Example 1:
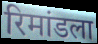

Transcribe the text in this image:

रिमांडला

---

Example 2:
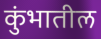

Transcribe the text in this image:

कुंभातील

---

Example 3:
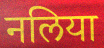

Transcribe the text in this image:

नलिया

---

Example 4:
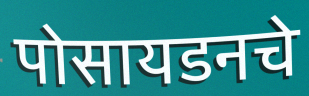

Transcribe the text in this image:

पोसायडनचे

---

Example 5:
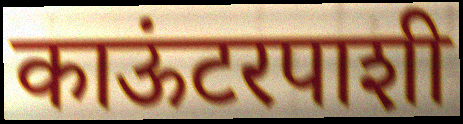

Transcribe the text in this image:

काऊंटरपाशी